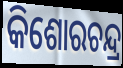
କିଶୋରଚନ୍ଦ୍ର